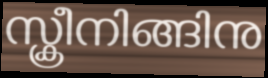
സ്ക്രീനിങ്ങിനു